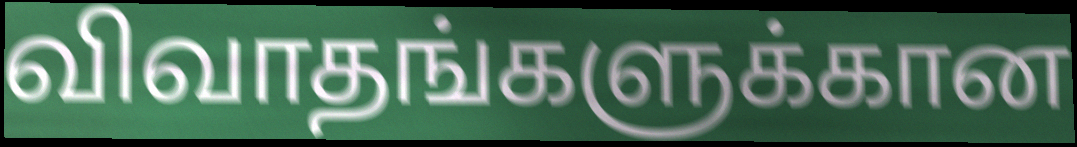
விவாதங்களுக்கான